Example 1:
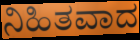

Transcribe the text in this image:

ನಿಹಿತವಾದ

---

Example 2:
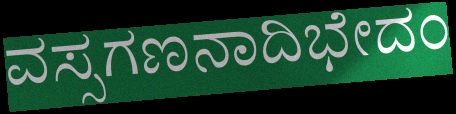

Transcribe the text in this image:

ವಸ್ಸಗಣನಾದಿಭೇದಂ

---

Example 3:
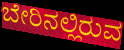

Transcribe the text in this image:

ಬೇರಿನಲ್ಲಿರುವ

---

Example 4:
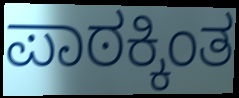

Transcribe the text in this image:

ಪಾಠಕ್ಕಿಂತ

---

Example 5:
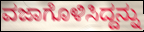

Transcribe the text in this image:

ವಜಾಗೊಳಿಸಿದ್ದನ್ನು